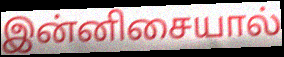
இன்னிசையால்